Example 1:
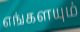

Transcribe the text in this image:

எங்களயும்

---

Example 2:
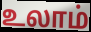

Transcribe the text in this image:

உலாம்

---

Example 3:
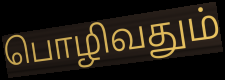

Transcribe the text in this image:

பொழிவதும்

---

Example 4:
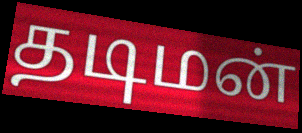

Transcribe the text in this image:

தடிமன்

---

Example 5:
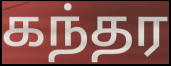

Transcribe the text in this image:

கந்தர